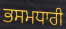
ਭਸਮਧਾਰੀ